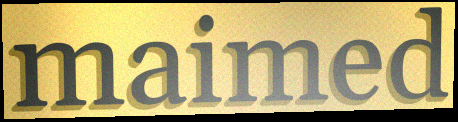
maimed